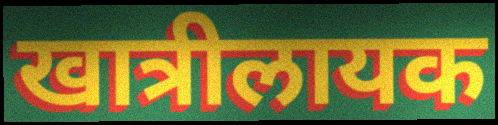
खात्रीलायक